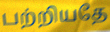
பற்றியதே